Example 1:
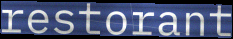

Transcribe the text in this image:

restorant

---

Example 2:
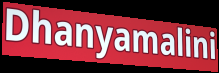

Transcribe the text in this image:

Dhanyamalini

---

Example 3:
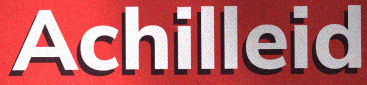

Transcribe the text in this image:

Achilleid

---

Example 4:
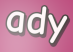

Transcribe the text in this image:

ady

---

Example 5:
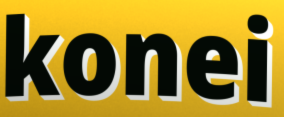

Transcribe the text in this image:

konei